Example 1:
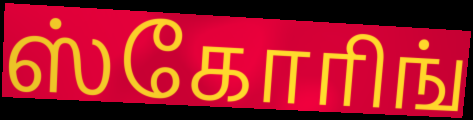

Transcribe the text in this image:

ஸ்கோரிங்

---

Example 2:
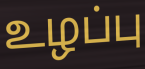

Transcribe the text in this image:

உழப்பு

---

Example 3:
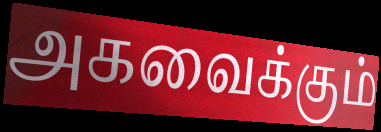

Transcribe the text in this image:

அகவைக்கும்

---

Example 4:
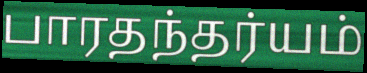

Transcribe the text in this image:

பாரதந்தர்யம்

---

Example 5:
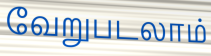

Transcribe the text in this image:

வேறுபடலாம்